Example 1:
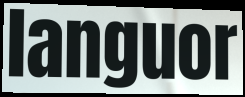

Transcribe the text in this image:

languor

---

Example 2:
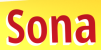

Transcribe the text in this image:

Sona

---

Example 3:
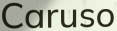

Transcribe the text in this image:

Caruso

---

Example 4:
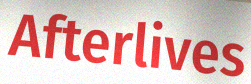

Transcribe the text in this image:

Afterlives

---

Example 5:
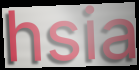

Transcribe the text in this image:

hsia